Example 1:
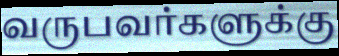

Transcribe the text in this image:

வருபவர்களுக்கு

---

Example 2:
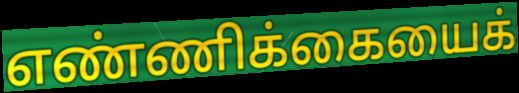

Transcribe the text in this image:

எண்ணிக்கையைக்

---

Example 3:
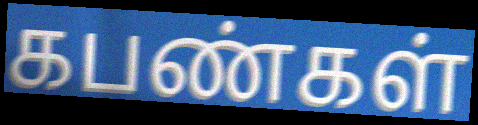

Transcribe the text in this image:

கபண்கள்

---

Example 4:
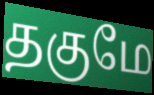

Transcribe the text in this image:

தகுமே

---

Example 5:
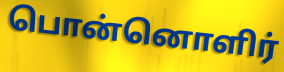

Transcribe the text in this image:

பொன்னொளிர்